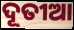
ଦୂତୀଆ